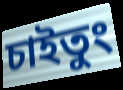
চাইতুং